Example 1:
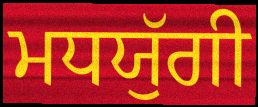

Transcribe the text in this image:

ਮਧਯੁੱਗੀ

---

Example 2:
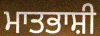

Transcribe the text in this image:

ਮਾਤਭਾਸ਼ੀ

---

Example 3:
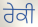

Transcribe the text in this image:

ਰੇਕੀ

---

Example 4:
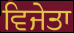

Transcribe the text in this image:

ਵਿਜੇਤਾ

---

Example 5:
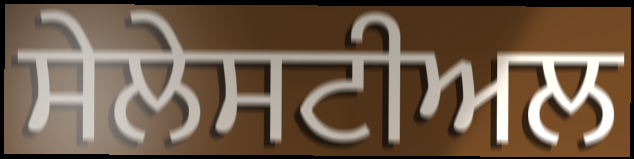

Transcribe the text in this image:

ਸੇਲੇਸਟੀਅਲ